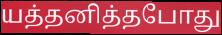
யத்தனித்தபோது